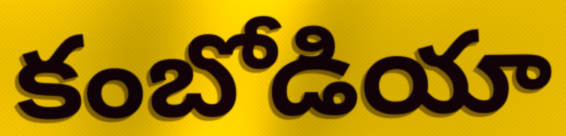
కంబోడియా